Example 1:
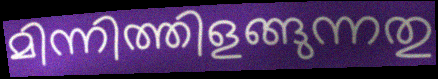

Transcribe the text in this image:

മിന്നിത്തിളങ്ങുന്നതു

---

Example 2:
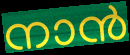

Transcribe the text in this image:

നാൻ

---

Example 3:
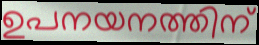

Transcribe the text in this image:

ഉപനയനത്തിന്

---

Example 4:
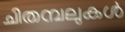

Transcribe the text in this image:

ചിതമ്പലുകൾ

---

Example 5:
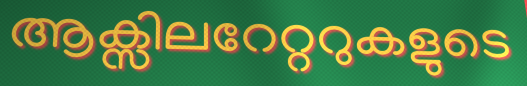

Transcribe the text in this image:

ആക്സിലറേറ്ററുകളുടെ